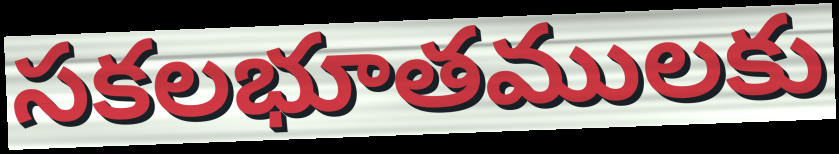
సకలభూతములకు